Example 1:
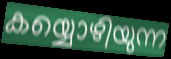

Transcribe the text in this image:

കയ്യൊഴിയുന്ന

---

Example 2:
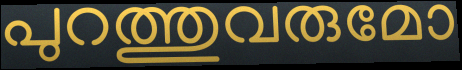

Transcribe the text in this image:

പുറത്തുവരുമോ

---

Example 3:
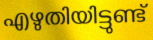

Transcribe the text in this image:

എഴുതിയിട്ടുണ്ട്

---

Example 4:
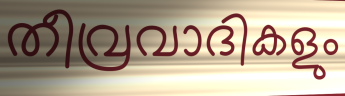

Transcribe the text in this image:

തീവ്രവാദികളും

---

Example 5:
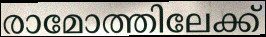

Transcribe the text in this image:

രാമോത്തിലേക്ക്